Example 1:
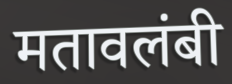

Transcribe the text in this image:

मतावलंबी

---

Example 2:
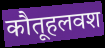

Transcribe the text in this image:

कौतूहलवश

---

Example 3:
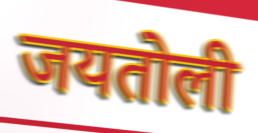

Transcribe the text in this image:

जयतोली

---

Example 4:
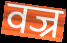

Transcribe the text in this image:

वज्र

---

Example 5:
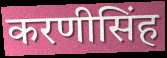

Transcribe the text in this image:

करणीसिंह